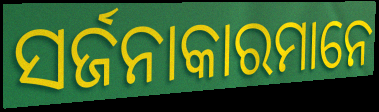
ସର୍ଜନାକାରମାନେ